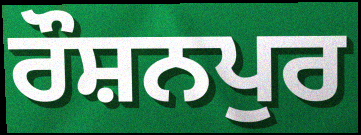
ਰੌਸ਼ਨਪੁਰ